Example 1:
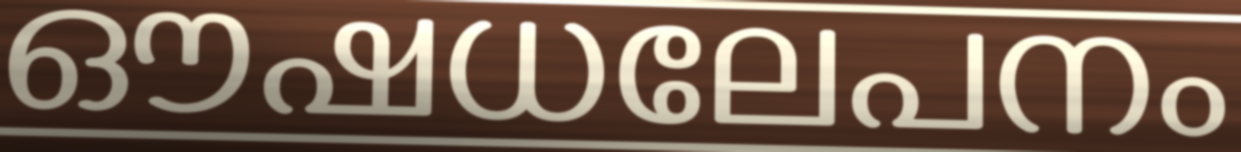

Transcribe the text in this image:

ഔഷധലേപനം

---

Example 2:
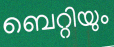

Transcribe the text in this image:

ബെറ്റിയും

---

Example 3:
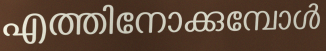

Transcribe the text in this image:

എത്തിനോക്കുമ്പോൾ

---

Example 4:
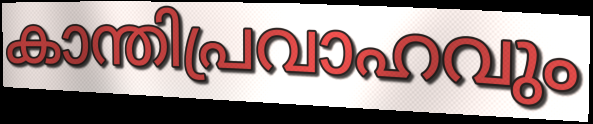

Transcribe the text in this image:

കാന്തിപ്രവാഹവും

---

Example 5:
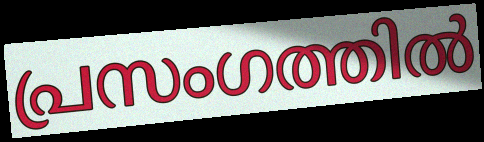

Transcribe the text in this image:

പ്രസംഗത്തിൽ